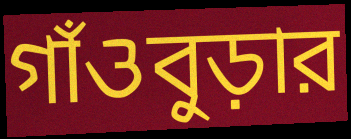
গাঁওবুড়ার